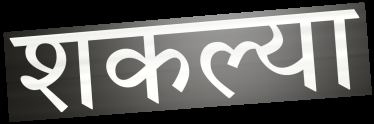
शकल्या